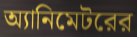
অ্যানিমেটরের